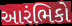
આરંભિકો